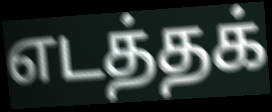
எடத்தக்